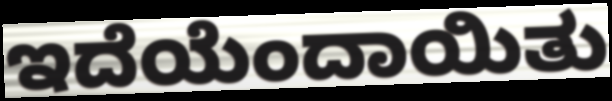
ಇದೆಯೆಂದಾಯಿತು